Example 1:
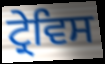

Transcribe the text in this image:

ਟ੍ਰੇਵਿਸ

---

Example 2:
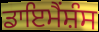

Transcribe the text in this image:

ਡਾਇਮੈਂਸ਼ੰਸ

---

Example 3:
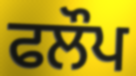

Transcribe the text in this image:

ਫਲੌਪ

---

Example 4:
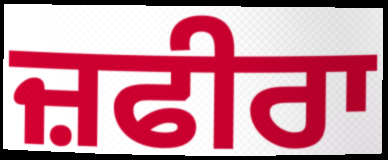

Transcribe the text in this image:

ਜ਼ਫੀਰਾ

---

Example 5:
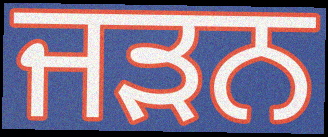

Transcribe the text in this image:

ਜੜਨ